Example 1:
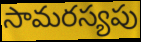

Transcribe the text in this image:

సామరస్యపు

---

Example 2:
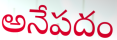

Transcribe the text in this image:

అనేపదం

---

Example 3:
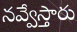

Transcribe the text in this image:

నవ్వేస్తారు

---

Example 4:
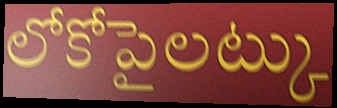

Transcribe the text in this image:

లోకోపైలట్కు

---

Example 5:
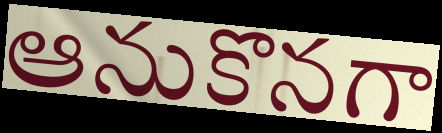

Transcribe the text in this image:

ఆనుకొనగా